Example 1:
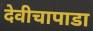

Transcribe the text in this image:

देवीचापाडा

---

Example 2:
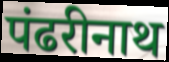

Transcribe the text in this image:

पंढरीनाथ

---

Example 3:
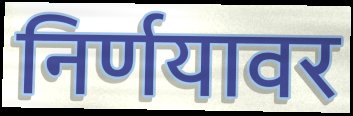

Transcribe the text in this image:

निर्णयावर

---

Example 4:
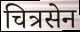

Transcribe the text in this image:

चित्रसेन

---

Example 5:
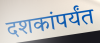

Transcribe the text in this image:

दशकांपर्यंत